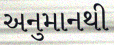
અનુમાનથી